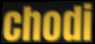
chodi